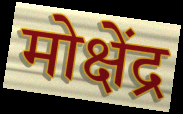
मोक्षेंद्र